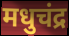
मधुचंद्र